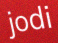
jodi